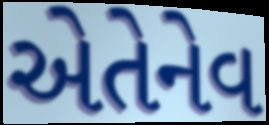
એતેનેવ